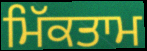
ਮਿੱਕਤਾਮ